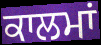
ਕਾਲਮਾਂ